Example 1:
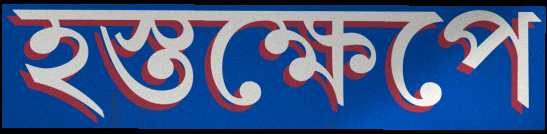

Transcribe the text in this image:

হস্তক্ষেপে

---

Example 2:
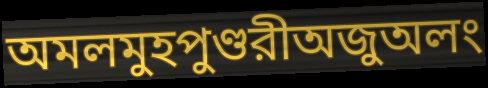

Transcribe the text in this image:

অমলমুহপুণ্ডরীঅজুঅলং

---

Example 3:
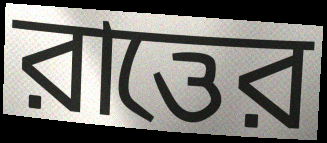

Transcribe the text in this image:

রাত্তের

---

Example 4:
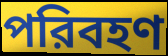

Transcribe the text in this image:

পরিবহণ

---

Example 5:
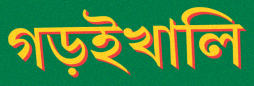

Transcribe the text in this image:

গড়ইখালি